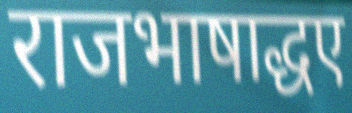
राजभाषाद्धए